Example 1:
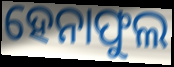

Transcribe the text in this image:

ହେନାଫୁଲ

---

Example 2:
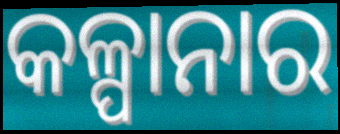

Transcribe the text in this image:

କଳ୍ପାନାର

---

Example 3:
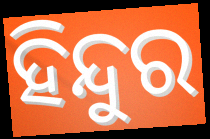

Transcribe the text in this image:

ହିନ୍ଦୁର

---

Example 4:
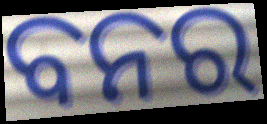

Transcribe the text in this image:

ବନର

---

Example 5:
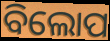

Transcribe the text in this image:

ବିଲୋପ